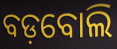
ବଡ଼ବୋଲି